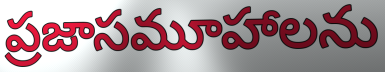
ప్రజాసమూహాలను